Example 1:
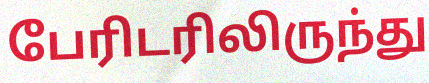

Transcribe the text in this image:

பேரிடரிலிருந்து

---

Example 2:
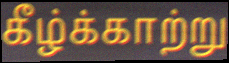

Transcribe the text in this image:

கீழ்க்காற்று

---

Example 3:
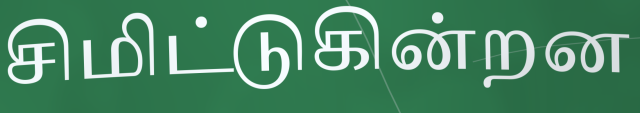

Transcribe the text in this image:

சிமிட்டுகின்றன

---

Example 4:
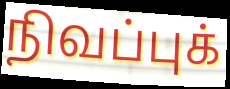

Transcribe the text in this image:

நிவப்புக்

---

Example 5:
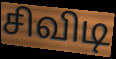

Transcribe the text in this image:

சிவிடி